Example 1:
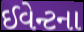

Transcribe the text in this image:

ઈવેન્ટના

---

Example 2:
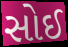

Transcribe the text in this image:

સોઈ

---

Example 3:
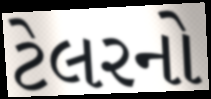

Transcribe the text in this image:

ટેલરનો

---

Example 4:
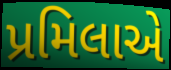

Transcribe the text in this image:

પ્રમિલાએ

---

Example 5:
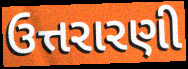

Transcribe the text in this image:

ઉત્તરારણી